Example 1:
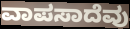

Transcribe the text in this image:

ವಾಪಸಾದೆವು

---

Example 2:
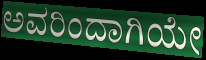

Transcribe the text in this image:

ಅವರಿಂದಾಗಿಯೇ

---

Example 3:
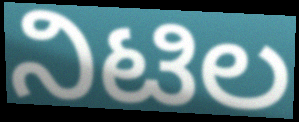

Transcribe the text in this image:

ನಿಟಿಲ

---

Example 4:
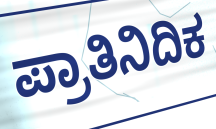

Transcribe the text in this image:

ಪ್ರಾತಿನಿದಿಕ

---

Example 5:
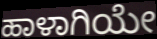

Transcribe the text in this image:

ಹಾಳಾಗಿಯೇ